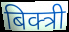
बिक्त्री